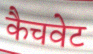
कैचवेट